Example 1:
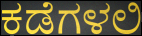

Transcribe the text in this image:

ಕಡೆಗಳಲಿ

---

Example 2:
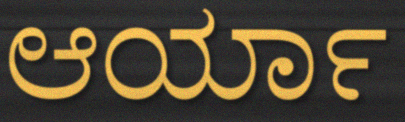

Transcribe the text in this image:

ಆರ್ಯಾ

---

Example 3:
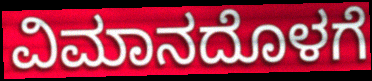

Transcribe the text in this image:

ವಿಮಾನದೊಳಗೆ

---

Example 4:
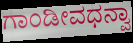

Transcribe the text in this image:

ಗಾಂಡೀವಧನ್ವಾ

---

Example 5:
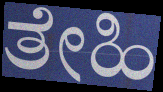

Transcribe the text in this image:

ತೇಹಿ